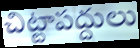
చిట్టాపద్దులు